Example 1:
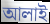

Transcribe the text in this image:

আলাই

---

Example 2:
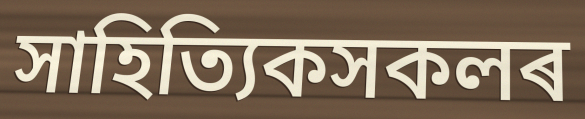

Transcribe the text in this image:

সাহিত্যিকসকলৰ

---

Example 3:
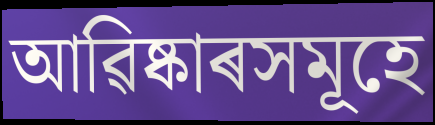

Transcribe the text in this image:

আৱিষ্কাৰসমূহে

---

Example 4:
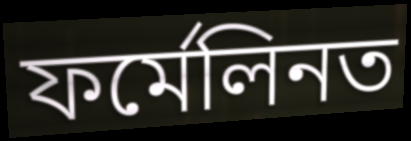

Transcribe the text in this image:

ফৰ্মেলিনত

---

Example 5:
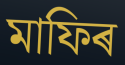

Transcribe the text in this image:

মাফিৰ